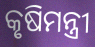
କୃଷିମନ୍ତ୍ରୀ